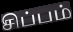
சிப்பம்